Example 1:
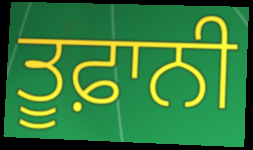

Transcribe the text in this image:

ਤੂਫ਼ਾਨੀ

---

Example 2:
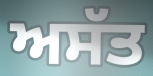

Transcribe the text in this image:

ਅਸੱਤ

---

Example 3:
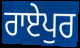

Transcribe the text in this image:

ਰਾਏਪੁਰ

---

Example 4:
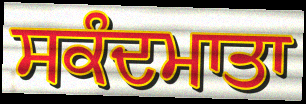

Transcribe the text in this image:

ਸਕੰਦਮਾਤਾ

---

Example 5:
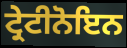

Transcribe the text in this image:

ਟ੍ਰੇਟੀਨੋਇਨ